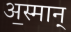
अ॒स्मान्